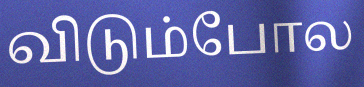
விடும்போல